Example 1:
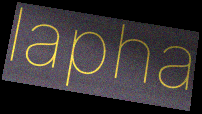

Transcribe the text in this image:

lapha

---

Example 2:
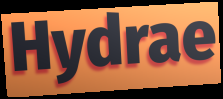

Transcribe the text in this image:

Hydrae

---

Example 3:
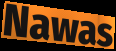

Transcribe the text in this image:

Nawas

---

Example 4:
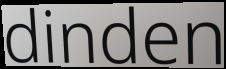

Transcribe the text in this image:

dinden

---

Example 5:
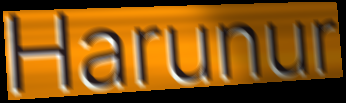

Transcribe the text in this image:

Harunur